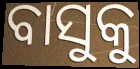
ବାସୁକୁ